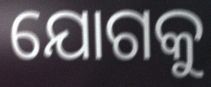
ଯୋଗକୁ